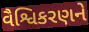
વૈશ્વિકરણને